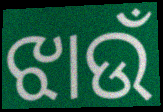
ଝାଉଁ